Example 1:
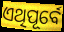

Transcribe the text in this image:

ଏଥିପୂର୍ବେ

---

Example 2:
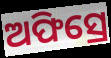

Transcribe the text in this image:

ଅଫିସ୍ରେ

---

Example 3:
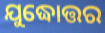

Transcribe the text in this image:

ଯୁଦ୍ଧୋତ୍ତର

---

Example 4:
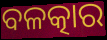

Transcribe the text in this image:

ବଳତ୍କାର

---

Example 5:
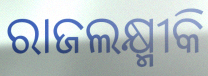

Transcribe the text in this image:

ରାଜଲକ୍ଷ୍ମୀକି